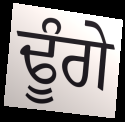
ਢੂੰਗੇ